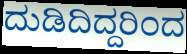
ದುಡಿದಿದ್ದರಿಂದ